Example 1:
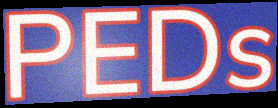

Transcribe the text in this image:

PEDs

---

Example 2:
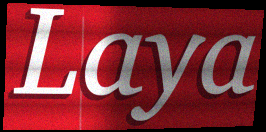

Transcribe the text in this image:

Laya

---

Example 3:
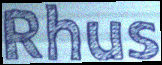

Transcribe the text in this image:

Rhus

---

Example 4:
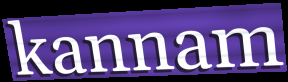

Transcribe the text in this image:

kannam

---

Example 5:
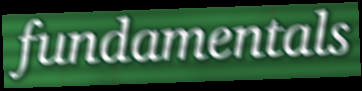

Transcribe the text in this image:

fundamentals